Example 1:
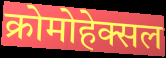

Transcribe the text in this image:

क्रोमोहेक्सल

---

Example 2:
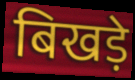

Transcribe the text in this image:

बिखड़े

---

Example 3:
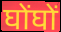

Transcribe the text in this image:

घोंघों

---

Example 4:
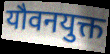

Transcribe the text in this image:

यौवनयुक्त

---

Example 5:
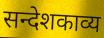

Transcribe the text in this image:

सन्देशकाव्य